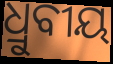
ଧ୍ରୁବୀୟ